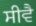
ਸੀਵੈ